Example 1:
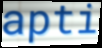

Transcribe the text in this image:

apti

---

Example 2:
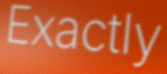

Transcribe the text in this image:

Exactly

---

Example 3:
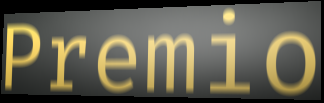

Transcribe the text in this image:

Premio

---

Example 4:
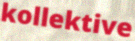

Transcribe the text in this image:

kollektive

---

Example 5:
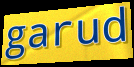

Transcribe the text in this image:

garud